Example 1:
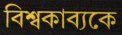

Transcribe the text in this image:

বিশ্বকাব্যকে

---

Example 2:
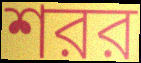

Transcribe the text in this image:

শরর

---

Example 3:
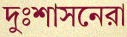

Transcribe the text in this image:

দুঃশাসনেরা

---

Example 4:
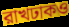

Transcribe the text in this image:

রাখঢাকও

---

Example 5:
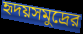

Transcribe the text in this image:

হৃদয়সমুদ্রের